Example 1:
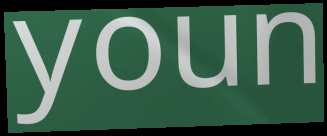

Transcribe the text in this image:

youn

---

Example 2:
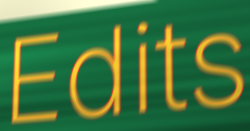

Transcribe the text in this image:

Edits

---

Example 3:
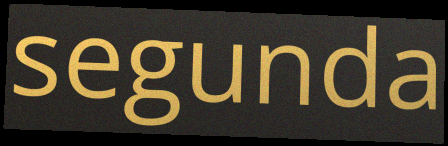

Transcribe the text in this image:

segunda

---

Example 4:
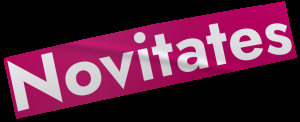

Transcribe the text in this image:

Novitates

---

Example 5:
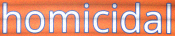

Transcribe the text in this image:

homicidal